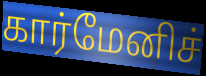
கார்மேனிச்